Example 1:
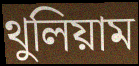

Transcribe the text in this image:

থুলিয়াম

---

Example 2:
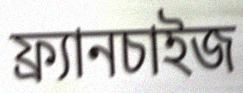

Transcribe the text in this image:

ফ্র্যানচাইজ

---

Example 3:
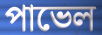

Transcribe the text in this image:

পাভেল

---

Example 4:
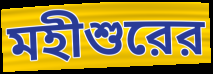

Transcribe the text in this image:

মহীশুরের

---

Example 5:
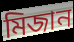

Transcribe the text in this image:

মিজান